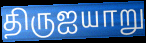
திருஐயாறு